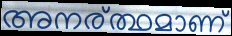
അനര്ത്ഥമാണ്